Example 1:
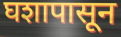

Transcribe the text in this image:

घशापासून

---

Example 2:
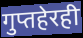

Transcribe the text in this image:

गुप्तहेरही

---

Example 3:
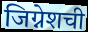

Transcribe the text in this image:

जिग्नेशची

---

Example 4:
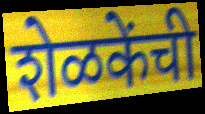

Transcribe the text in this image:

शेळकेंची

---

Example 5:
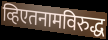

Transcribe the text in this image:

व्हिएतनामविरुद्ध